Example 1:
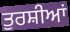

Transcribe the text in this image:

ਤੁਰਸ਼ੀਆਂ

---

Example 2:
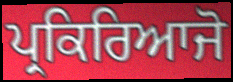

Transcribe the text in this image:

ਪ੍ਰਕਿਰਿਆਜੋ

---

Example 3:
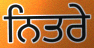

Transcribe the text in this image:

ਨਿਤਰੇ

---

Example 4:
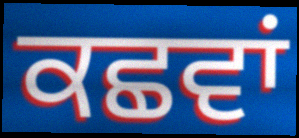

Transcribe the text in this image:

ਕਛਵਾਂ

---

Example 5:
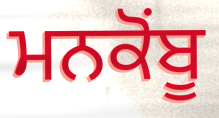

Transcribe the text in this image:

ਮਨਕੋਂਬੂ